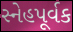
સ્નેહપૂર્વક